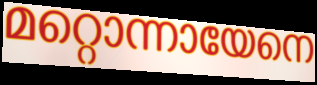
മറ്റൊന്നായേനെ